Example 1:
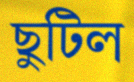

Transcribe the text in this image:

ছুটিল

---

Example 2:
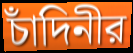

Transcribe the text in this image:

চাঁদিনীর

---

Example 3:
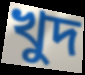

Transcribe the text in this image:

খুদ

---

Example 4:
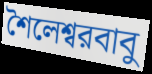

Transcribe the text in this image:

শৈলেশ্বরবাবু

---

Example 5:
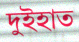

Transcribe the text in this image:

দুইহাত